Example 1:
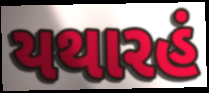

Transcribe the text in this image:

યથારહં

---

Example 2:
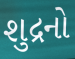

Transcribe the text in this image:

શુદ્રનો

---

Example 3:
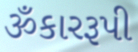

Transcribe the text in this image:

ૐકારરૂપી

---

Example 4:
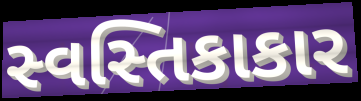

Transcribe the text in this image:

સ્વસ્તિકાકાર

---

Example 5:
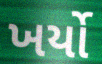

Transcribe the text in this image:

ખર્યો